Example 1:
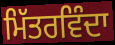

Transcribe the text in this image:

ਮਿੱਤਰਵਿੰਦਾ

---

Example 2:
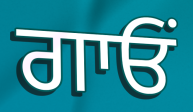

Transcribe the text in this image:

ਗਾਓਂ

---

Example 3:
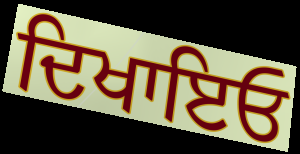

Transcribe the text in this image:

ਦਿਖਾਇਓ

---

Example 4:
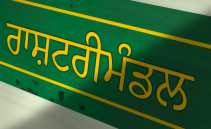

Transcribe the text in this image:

ਰਾਸ਼ਟਰੀਮੰਡਲ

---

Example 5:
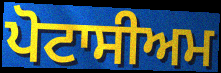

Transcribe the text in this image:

ਪੋਟਾਸੀਅਮ